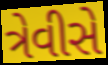
ત્રેવીસે